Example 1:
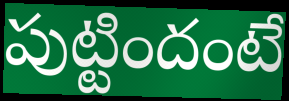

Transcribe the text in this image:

పుట్టిందంటే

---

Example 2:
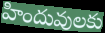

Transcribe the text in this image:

హిందువులకు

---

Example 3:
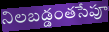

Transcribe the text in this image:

నిలబడ్డంతసేపూ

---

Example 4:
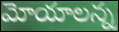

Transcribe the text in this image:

మోయాలన్న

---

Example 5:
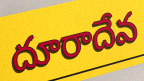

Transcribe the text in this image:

దూరాదేవ